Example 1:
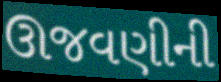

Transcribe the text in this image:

ઊજવણીની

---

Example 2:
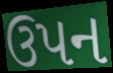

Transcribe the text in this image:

ઉપન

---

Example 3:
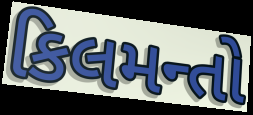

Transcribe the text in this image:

કિલમન્તો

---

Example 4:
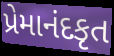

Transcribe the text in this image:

પ્રેમાનંદકૃત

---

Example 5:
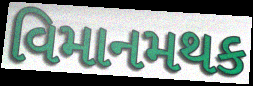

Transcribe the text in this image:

વિમાનમથક